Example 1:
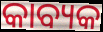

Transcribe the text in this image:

କାବ୍ୟକ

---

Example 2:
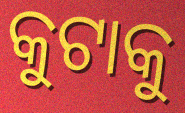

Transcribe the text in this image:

କୁଟାକୁ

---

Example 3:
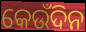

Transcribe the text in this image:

କେଉଁଦିନ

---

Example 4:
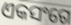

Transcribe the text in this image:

ଏକସଂଗେ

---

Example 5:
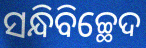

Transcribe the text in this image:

ସନ୍ଧିବିଚ୍ଛେଦ